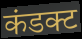
कंडक्ट